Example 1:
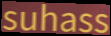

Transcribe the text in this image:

suhass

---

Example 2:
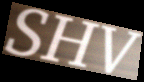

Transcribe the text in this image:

SHV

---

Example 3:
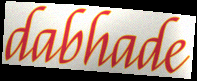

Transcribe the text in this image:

dabhade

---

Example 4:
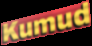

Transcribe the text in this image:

Kumud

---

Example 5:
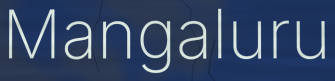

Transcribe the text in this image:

Mangaluru